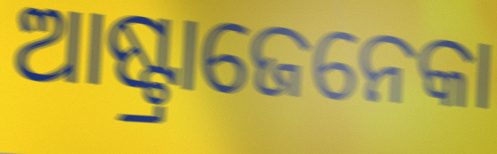
ଆଷ୍ଟ୍ରାଜେନେକା